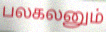
பலகலனும்